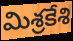
మిశ్రకేశి